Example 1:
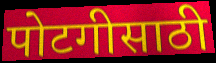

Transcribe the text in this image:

पोटगीसाठी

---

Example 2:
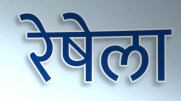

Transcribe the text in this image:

रेषेला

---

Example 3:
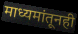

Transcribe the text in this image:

माध्यमांतूनही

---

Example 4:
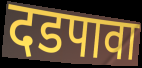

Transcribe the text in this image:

दडपावा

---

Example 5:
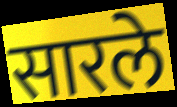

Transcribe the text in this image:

सारले